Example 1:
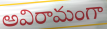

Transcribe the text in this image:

అవిరామంగా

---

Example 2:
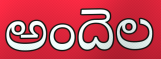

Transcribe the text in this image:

అందెల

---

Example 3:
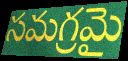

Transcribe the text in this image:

సమగ్రమై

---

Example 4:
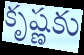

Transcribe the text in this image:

కృష్ణకు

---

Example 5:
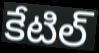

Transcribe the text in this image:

కేటిల్